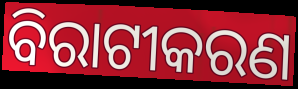
ବିରାଟୀକରଣ